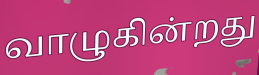
வாழுகின்றது